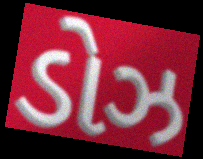
ડોઝ